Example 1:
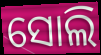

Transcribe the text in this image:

ସୋଲି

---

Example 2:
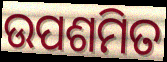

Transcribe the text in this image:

ଉପଶମିତ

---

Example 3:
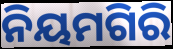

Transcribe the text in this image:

ନିୟମଗିରି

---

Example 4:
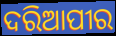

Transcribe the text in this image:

ଦରିଆପୀର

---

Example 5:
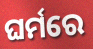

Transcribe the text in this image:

ଘର୍ମରେ